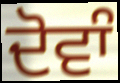
ਦੋਵਾੰ